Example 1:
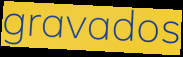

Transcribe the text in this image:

gravados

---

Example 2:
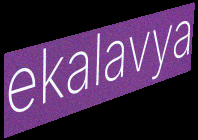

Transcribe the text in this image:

ekalavya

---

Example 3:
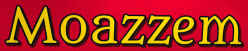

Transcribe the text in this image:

Moazzem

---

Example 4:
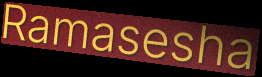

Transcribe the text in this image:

Ramasesha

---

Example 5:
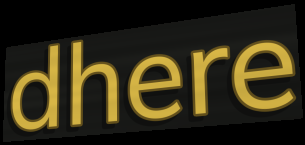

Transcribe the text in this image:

dhere